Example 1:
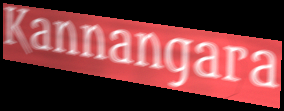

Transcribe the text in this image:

Kannangara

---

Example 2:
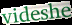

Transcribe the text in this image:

videshe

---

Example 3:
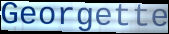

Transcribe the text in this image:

Georgette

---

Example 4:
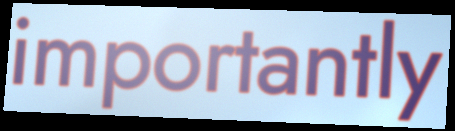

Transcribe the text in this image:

importantly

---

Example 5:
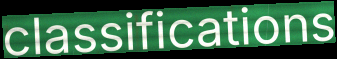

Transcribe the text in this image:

classifications